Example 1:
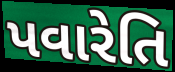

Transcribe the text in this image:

પવારેતિ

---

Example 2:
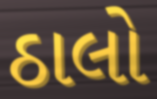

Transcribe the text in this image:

ઠાલો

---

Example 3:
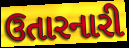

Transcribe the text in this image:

ઉતારનારી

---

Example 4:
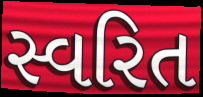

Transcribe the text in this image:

સ્વરિત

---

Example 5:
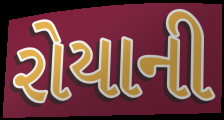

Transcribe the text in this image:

રોયાની